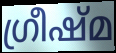
ഗ്രീഷ്മ